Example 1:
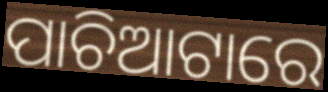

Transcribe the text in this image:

ପାଚିଆଟାରେ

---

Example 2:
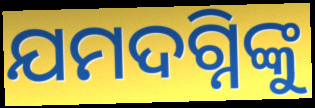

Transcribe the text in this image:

ଯମଦଗ୍ନିଙ୍କୁ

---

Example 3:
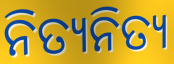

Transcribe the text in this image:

ନିତ୍ୟନିତ୍ୟ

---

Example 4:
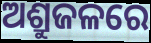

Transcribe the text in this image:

ଅଶ୍ରୁଜଳରେ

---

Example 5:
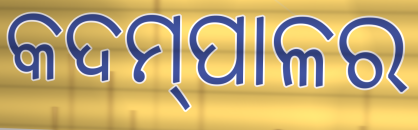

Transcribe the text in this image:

କଦମ୍‍ପାଳର